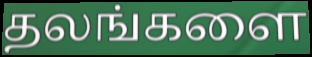
தலங்களை